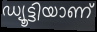
ഡ്യൂട്ടിയാണ്